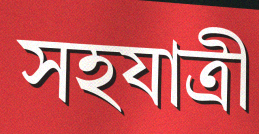
সহযাত্ৰী